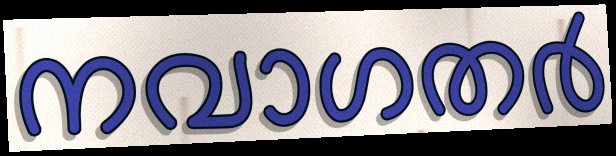
നവാഗതർ